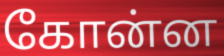
கோன்ன